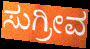
ಸುಗ್ರೀವ